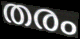
തരം